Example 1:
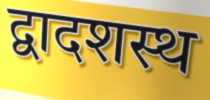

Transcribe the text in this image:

द्वादशस्थ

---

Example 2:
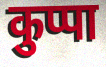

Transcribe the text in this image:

कुप्पा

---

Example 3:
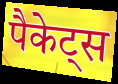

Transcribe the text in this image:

पैकेट्स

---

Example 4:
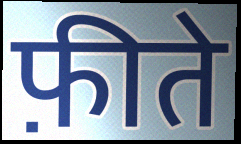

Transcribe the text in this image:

फ़ीते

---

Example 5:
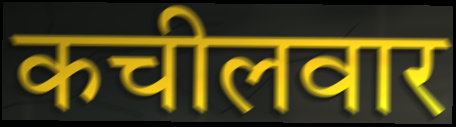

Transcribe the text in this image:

कचीलवार